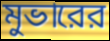
মুভারের